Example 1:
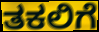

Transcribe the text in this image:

ತಕಲಿಗೆ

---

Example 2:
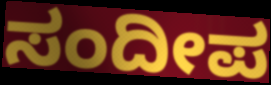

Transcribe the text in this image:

ಸಂದೀಪ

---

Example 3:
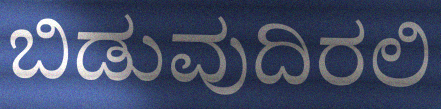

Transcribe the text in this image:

ಬಿಡುವುದಿರಲಿ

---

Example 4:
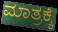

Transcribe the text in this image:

ಮಾತ್ರಕ್ಕೆ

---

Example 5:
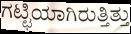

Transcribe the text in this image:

ಗಟ್ಟಿಯಾಗಿರುತ್ತಿತ್ತು